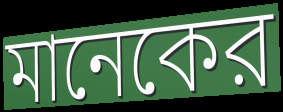
মানেকের